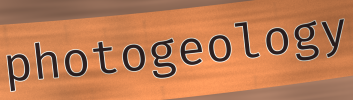
photogeology